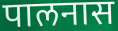
पालनास